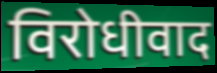
विरोधीवाद